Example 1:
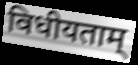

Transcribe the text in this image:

विधीयताम्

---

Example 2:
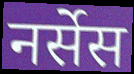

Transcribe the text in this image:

नर्सेस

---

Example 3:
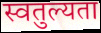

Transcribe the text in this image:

स्वतुल्यता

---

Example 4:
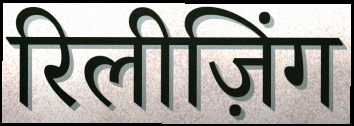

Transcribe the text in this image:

रिलीज़िंग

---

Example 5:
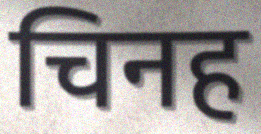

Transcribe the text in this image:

चिनह